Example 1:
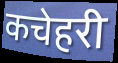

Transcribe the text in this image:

कचेहरी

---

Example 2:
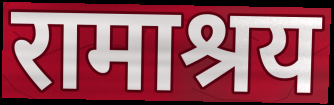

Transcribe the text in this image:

रामाश्रय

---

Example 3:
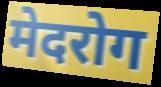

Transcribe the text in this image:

मेदरोग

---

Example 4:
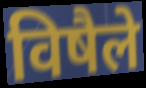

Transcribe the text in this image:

विषैले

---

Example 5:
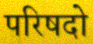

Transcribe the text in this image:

परिषदो